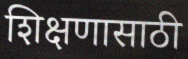
शिक्षणासाठी